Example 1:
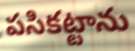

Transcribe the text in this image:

పసికట్టాను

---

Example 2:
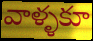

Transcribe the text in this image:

వాళ్ళకూ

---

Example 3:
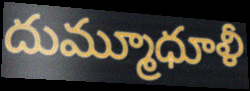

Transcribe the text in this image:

దుమ్మూధూళీ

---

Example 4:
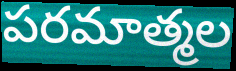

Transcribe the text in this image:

పరమాత్మల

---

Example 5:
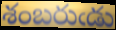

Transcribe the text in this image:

శంబరుఁడు